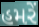
હમરેં